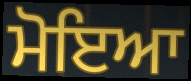
ਮੋਇਆ